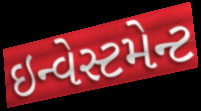
ઇન્વેસ્ટમેન્ટ